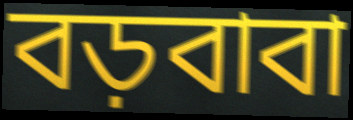
বড়বাবা